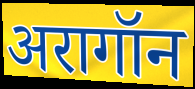
अरागॉन